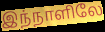
இந்நாளிலே